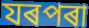
যৰপৰা